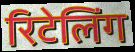
रिटेलिंग